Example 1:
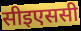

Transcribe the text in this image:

सीइएससी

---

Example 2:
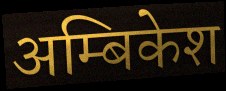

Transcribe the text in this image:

अम्बिकेश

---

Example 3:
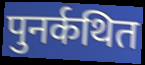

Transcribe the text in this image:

पुनर्कथित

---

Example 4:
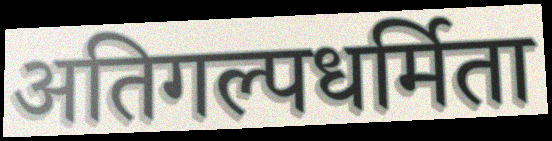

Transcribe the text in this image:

अतिगल्पधर्मिता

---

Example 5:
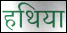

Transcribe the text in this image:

हथिया